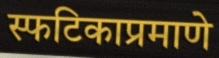
स्फटिकाप्रमाणे